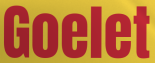
Goelet